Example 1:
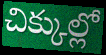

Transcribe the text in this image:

చిక్కుల్లో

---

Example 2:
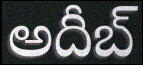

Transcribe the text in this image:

అదీబ్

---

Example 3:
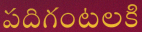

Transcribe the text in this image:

పదిగంటలకి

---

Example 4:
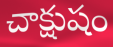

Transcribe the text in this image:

చాక్షుషం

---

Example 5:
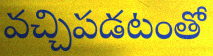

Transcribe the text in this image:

వచ్చిపడటంతో